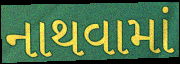
નાથવામાં